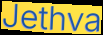
Jethva